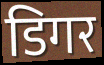
डिगर